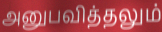
அனுபவித்தலும்